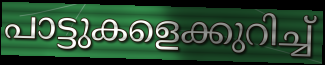
പാട്ടുകളെക്കുറിച്ച്